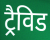
ट्रैविड